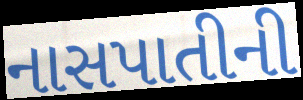
નાસપાતીની